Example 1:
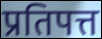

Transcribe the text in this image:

प्रतिपत्त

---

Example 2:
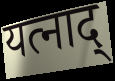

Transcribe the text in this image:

यत्नाद्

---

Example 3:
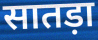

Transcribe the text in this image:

सातड़ा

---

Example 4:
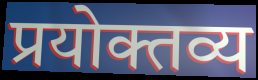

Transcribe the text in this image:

प्रयोक्तव्य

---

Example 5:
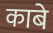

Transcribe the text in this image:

काबे